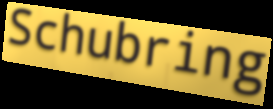
Schubring